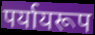
पर्यायरूप